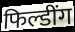
फिल्डींग